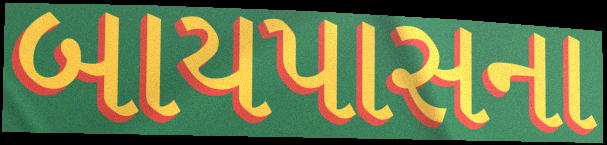
બાયપાસના